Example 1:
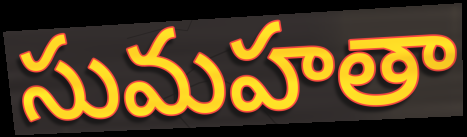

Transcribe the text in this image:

సుమహతా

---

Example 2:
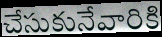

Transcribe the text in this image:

చేసుకునేవారికి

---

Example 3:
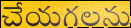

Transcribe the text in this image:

చేయగలను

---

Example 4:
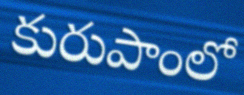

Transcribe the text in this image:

కురుపాంలో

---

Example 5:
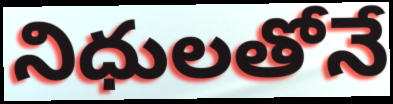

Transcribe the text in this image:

నిధులతోనే